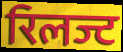
रिलज्ट